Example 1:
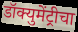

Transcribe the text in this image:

डॉक्युमेंट्रीचा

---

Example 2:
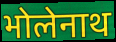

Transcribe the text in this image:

भोलेनाथ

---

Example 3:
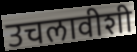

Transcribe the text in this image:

उचलावीशी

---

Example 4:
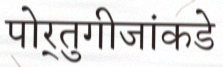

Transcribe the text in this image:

पोर्तुगीजांकडे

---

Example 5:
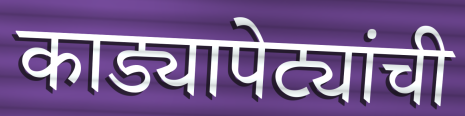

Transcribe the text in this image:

काड्यापेट्यांची